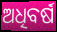
ଅଧିବର୍ଷ